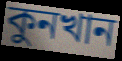
কুনখান